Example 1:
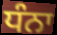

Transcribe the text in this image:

ਧੰਨਾ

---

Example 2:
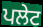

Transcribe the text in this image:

ਪਲੇਟ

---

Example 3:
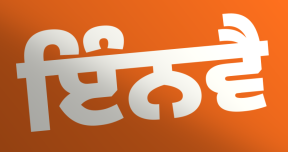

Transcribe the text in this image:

ਇੰਨਵੈ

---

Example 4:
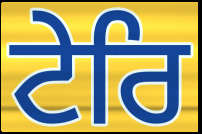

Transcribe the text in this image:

ਟੇਰਿ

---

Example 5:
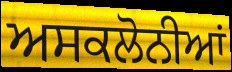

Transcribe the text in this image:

ਅਸਕਲੋਨੀਆਂ